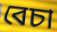
বেচা